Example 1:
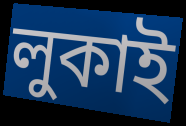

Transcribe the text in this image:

লুকাই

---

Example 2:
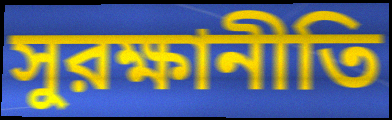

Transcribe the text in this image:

সুরক্ষানীতি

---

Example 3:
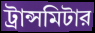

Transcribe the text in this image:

ট্রান্সমিটার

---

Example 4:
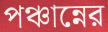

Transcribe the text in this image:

পঞ্চান্নের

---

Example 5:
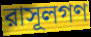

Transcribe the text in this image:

রাসূলগণ